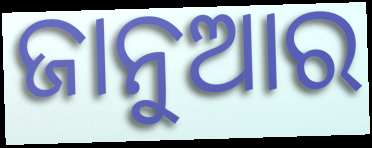
ଜାନୁଆର